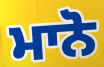
ਮਾਨੋ